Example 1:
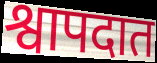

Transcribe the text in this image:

श्वापदात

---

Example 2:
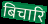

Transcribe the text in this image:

बिचारि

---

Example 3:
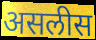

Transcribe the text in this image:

असलीस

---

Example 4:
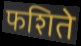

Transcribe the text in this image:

फशिते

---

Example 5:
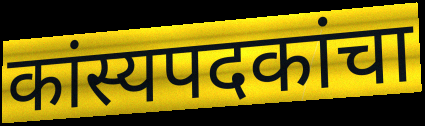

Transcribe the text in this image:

कांस्यपदकांचा